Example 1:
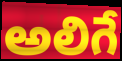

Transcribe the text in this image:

అలిగే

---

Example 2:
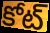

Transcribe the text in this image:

కోట్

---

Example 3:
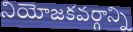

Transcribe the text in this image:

నియోజకవర్గాన్ని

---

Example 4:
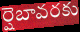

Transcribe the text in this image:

ర్షెబావరకు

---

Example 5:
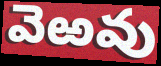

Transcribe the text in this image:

వెఱవు